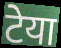
टेया